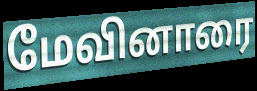
மேவினாரை